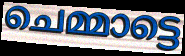
ചെമ്മാട്ടെ